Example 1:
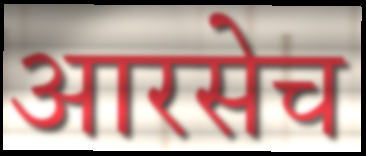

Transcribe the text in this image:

आरसेच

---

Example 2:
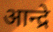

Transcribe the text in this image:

आन्द्रे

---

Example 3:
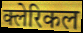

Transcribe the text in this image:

क्लेरिकल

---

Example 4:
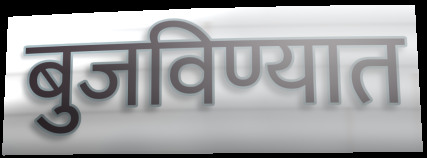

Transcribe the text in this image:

बुजविण्यात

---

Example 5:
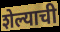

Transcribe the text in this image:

शेल्याची